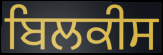
ਬਿਲਕੀਸ